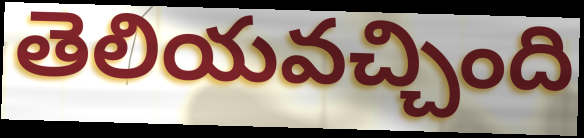
తెలియవచ్చింది